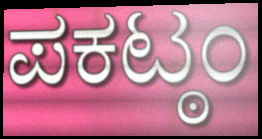
ಪಕಟ್ಠಂ